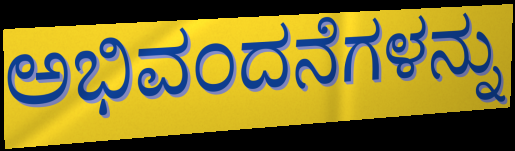
ಅಭಿವಂದನೆಗಳನ್ನು